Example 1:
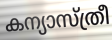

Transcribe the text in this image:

കന്യാസ്ത്രീ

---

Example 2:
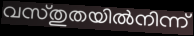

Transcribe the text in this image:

വസ്തുതയിൽനിന്ന്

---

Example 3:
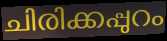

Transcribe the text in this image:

ചിരിക്കപ്പുറം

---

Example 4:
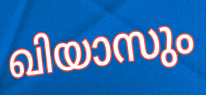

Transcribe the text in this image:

ഖിയാസും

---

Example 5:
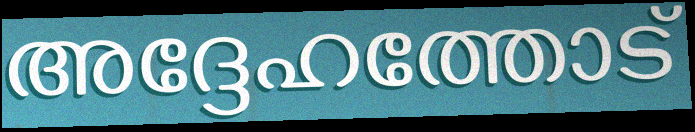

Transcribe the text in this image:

അദ്ദേഹത്തോട്